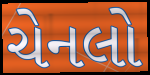
ચેનલો